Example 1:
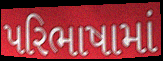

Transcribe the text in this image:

પરિભાષામાં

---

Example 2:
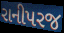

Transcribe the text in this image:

રાનીપરજ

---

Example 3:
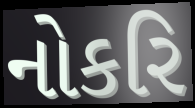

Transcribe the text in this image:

નોકરિ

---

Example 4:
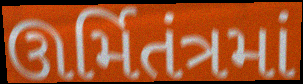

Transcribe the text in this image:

ઊર્મિતંત્રમાં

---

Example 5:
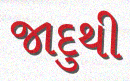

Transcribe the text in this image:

જાદુથી